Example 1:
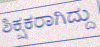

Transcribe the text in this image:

ಶಿಕ್ಷಕರಾಗಿದ್ದು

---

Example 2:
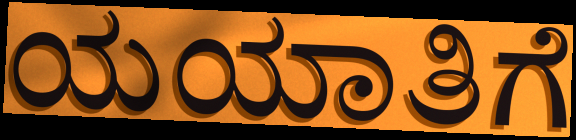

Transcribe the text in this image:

ಯಯಾತಿಗೆ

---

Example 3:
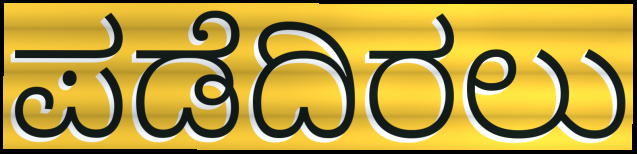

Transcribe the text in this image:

ಪಡೆದಿರಲು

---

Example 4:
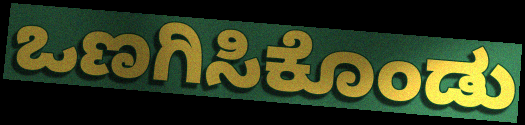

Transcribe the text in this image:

ಒಣಗಿಸಿಕೊಂಡು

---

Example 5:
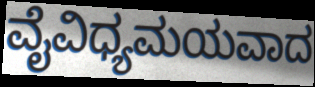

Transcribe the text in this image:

ವೈವಿಧ್ಯಮಯವಾದ